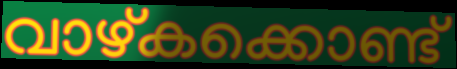
വാഴ്കക്കൊണ്ട്